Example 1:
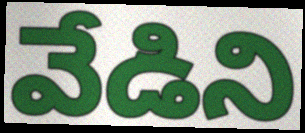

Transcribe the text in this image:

వేడిని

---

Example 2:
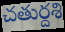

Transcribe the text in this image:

చతుర్దశి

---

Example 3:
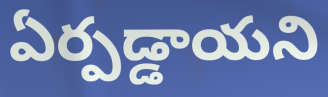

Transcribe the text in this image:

ఏర్పడ్డాయని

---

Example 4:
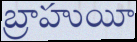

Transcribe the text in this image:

బ్రాహుయీ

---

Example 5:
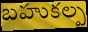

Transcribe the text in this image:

బహుకల్ప